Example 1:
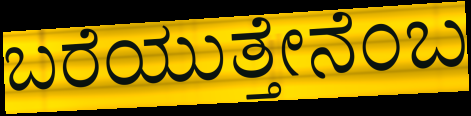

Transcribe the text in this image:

ಬರೆಯುತ್ತೇನೆಂಬ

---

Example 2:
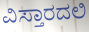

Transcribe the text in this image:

ವಿಸ್ತಾರದಲಿ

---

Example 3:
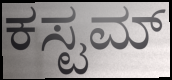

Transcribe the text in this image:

ಕಸ್ಟಮ್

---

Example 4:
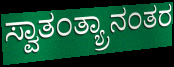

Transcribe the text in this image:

ಸ್ವಾತಂತ್ಯ್ರಾನಂತರ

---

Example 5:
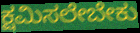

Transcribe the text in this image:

ಕ್ಷಮಿಸಲೇಬೇಕು